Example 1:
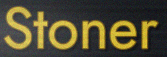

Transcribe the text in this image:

Stoner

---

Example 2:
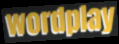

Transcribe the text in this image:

wordplay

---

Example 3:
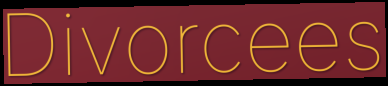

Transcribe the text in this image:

Divorcees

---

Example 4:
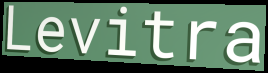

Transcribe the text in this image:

Levitra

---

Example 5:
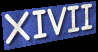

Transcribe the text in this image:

XIVII